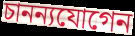
চানন্যযোগেন